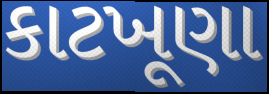
કાટખૂણા